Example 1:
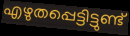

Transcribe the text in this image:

എഴുതപ്പെട്ടിട്ടുണ്ട്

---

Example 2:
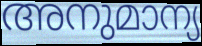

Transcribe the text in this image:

അനുമാന്യ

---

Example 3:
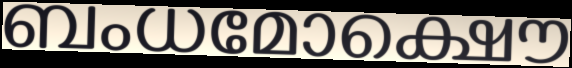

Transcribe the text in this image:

ബംധമോക്ഷൌ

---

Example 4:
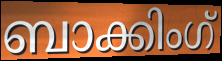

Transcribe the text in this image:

ബാക്കിംഗ്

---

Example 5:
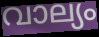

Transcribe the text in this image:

വാല്യം